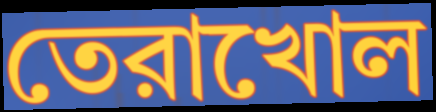
তেরাখোল